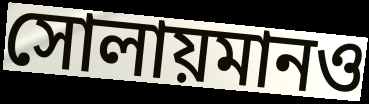
সোলায়মানও